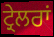
ਟ੍ਰੇਲਰਾਂ